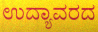
ಉದ್ಯಾವರದ